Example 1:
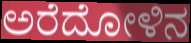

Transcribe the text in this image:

ಅರೆದೋಳಿನ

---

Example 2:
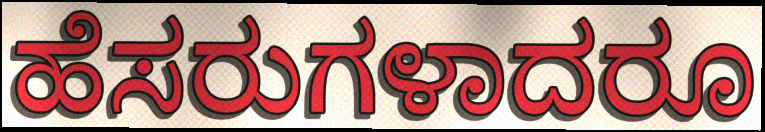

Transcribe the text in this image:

ಹೆಸರುಗಳಾದರೂ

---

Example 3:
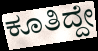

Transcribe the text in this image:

ಕೂತಿದ್ದೇ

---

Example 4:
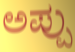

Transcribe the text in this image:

ಅಪ್ಪು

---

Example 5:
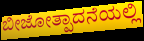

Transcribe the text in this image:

ಬೀಜೋತ್ಪಾದನೆಯಲ್ಲಿ